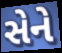
સેને